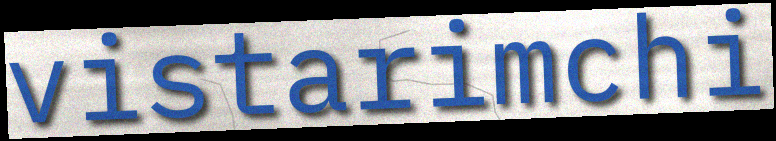
vistarimchi